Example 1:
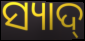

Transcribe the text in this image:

ସ୍ୟାଦ୍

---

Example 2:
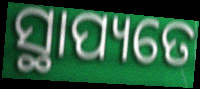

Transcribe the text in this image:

ସ୍ଥାପ୍ୟତେ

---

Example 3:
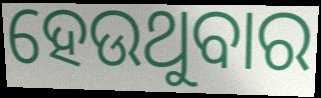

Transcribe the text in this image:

ହେଉଥୁବାର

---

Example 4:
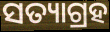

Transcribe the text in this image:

ସତ୍ୟାଗ୍ରହ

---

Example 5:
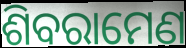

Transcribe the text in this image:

ଶିବରାମେଣ